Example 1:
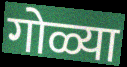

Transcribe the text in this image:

गोळ्या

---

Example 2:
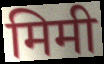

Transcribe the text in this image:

मिमी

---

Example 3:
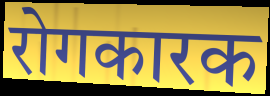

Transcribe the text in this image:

रोगकारक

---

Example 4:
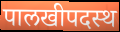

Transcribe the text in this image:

पालखीपदस्थ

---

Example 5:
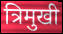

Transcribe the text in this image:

त्रिमुखी